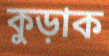
কুড়াক